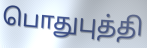
பொதுபுத்தி